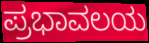
ಪ್ರಭಾವಲಯ